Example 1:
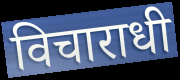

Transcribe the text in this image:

विचाराधी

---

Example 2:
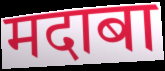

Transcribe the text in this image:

मदाबा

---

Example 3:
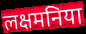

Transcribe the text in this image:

लक्षमनिया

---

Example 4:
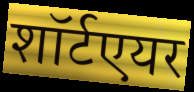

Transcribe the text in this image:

शॉर्टएयर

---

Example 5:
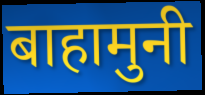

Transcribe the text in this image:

बाहामुनी